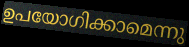
ഉപയോഗിക്കാമെന്നു